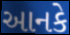
આનકે